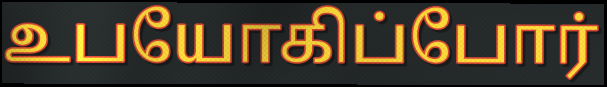
உபயோகிப்போர்